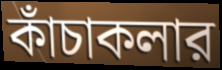
কাঁচাকলার